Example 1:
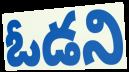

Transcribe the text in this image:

ఓడని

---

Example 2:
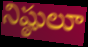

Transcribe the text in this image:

నిష్ఠులూ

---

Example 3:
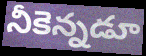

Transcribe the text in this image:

నీకెన్నడూ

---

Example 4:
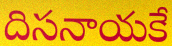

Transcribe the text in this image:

దిసనాయకే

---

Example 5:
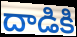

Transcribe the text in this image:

దాడికి